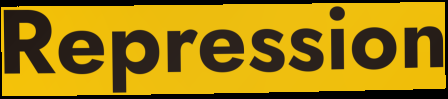
Repression